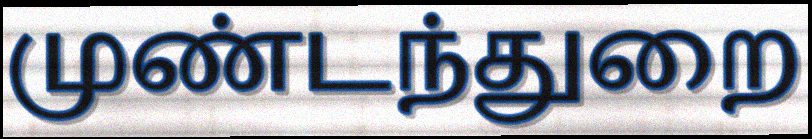
முண்டந்துறை